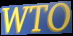
WTO